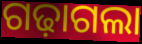
ଗଢ଼ାଗଲା